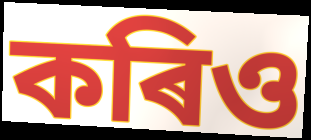
কৰিও